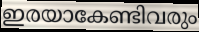
ഇരയാകേണ്ടിവരും